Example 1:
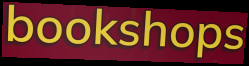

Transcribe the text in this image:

bookshops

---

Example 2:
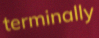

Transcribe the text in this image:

terminally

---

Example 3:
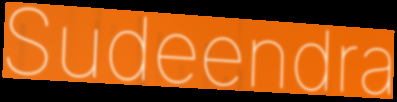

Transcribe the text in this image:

Sudeendra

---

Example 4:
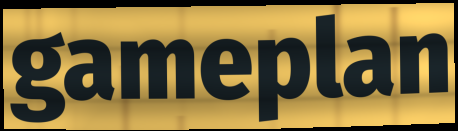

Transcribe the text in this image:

gameplan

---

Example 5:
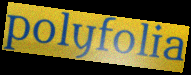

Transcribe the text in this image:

polyfolia